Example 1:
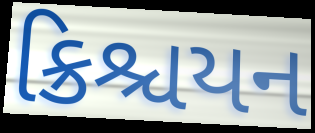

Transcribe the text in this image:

ક્રિશ્ચયન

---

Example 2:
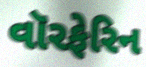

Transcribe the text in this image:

વૉરફેરિન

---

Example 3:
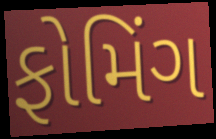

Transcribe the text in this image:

ફોમિંગ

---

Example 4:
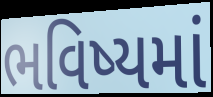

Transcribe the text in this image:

ભવિષ્યમાં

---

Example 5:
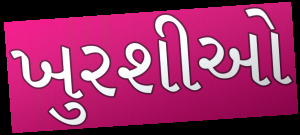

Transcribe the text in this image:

ખુરશીઓ